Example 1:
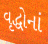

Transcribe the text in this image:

વૃદ્ધોનાં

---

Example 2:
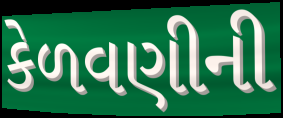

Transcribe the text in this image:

કેળવણીની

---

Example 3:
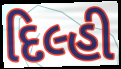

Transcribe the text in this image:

દિલ્હી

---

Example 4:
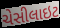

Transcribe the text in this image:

ચેસીલાઇટ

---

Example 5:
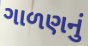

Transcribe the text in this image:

ગાળણનું